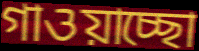
গাওয়াচ্ছো